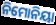
ନିମୋନିୟା